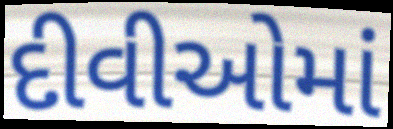
દીવીઓમાં